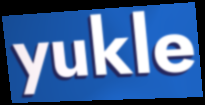
yukle